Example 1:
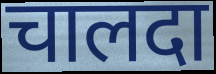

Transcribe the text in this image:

चालदा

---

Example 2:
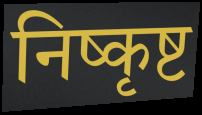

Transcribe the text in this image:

निष्कृष्ट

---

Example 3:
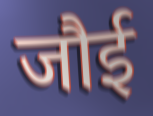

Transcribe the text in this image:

जौई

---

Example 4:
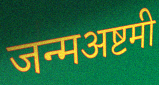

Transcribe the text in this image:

जन्मअष्टमी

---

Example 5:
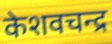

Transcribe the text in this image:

केशवचन्द्र